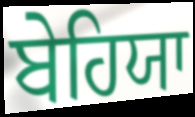
ਬੇਹਿਯਾ